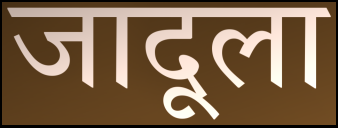
जादूला